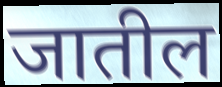
जातील